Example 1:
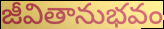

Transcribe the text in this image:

జీవితానుభవం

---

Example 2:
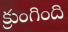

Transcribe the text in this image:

క్రుంగింది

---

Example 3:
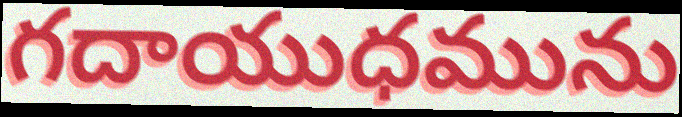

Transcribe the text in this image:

గదాయుధమును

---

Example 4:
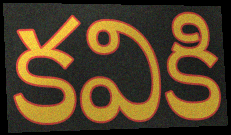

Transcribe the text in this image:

కవికి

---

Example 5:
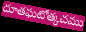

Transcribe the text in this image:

దూతఘటోత్కచము